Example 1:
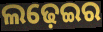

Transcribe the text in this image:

ଲଢ଼େଇର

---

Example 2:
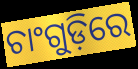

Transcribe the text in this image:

ଚାଂଗୁଡ଼ିରେ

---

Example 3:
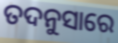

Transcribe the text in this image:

ତଦନୁସାରେ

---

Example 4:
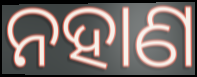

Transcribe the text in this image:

ନହାଣ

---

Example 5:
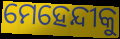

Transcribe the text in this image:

ମେହେନ୍ଦୀକୁ